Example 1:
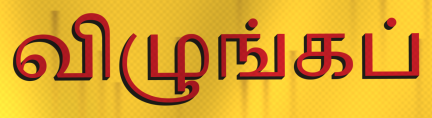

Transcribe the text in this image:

விழுங்கப்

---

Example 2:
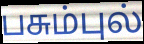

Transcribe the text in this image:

பசும்புல்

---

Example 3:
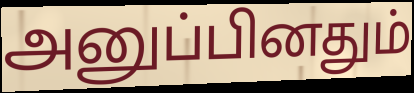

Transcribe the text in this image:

அனுப்பினதும்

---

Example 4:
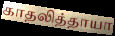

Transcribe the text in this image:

காதலித்தாயா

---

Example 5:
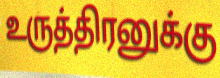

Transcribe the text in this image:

உருத்திரனுக்கு